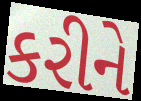
કરીને